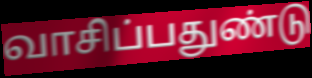
வாசிப்பதுண்டு